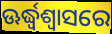
ଊର୍ଦ୍ଧ୍ୱଶ୍ୱାସରେ